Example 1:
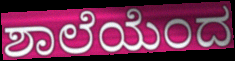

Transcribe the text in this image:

ಶಾಲೆಯೆಂದ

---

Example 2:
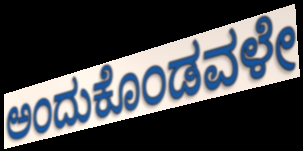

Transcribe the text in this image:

ಅಂದುಕೊಂಡವಳೇ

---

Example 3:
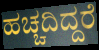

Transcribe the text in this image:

ಹಚ್ಚದಿದ್ದರೆ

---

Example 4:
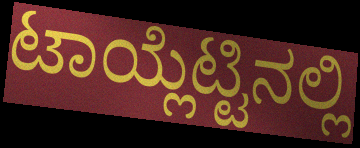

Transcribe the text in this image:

ಟಾಯ್ಲೆಟ್ಟಿನಲ್ಲಿ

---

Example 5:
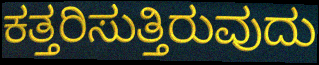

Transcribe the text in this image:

ಕತ್ತರಿಸುತ್ತಿರುವುದು